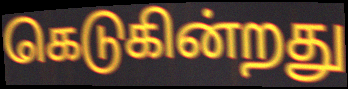
கெடுகின்றது